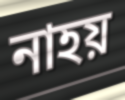
নাহয়